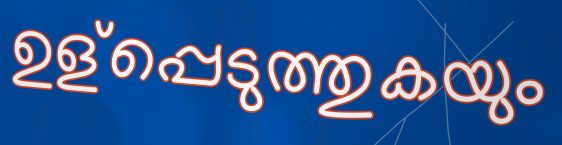
ഉള്പ്പെടുത്തുകയും